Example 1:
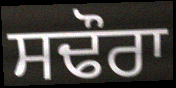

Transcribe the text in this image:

ਸਢੌਰਾ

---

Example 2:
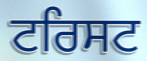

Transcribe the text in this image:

ਟਰਿਸਟ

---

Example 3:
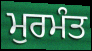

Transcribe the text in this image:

ਮੁਰਮੰਤ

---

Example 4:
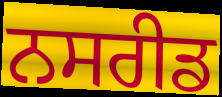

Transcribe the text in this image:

ਨਸਰੀਡ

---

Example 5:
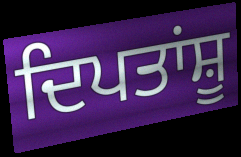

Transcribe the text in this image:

ਦਿਪਤਾਂਸ਼ੂ